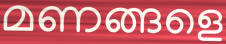
മണങ്ങളെ